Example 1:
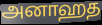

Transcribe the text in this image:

அனாஹத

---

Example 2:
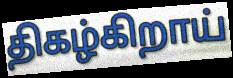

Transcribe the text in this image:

திகழ்கிறாய்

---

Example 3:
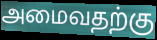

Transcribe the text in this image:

அமைவதற்கு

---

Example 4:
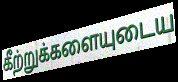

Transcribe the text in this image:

கீற்றுக்களையுடைய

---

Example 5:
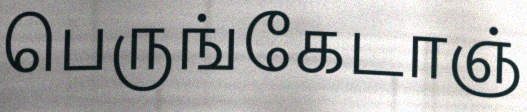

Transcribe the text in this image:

பெருங்கேடாஞ்